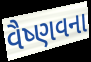
વૈષ્ણવના